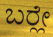
ಬರ್‍ಲೇ